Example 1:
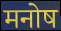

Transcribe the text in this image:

मनोष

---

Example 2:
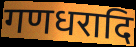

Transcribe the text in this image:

गणधरादि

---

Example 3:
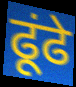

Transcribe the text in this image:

ढूंढे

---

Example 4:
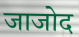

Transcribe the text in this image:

जाजोद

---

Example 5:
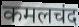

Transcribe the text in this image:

कमलचंद